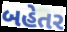
બહેતર